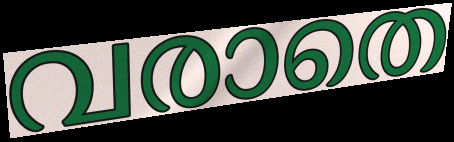
വരാതെ